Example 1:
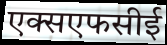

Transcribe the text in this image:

एक्सएफसीई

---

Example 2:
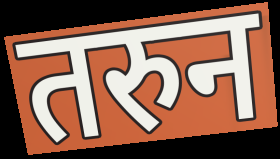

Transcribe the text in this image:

तरुन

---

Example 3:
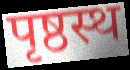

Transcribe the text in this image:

पृष्ठस्थ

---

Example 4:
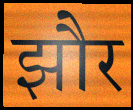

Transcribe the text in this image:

झौर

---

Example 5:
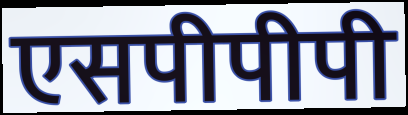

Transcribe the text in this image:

एसपीपीपी